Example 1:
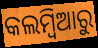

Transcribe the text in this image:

କଲମ୍ବିଆରୁ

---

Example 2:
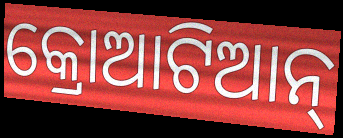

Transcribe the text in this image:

କ୍ରୋଆଟିଆନ୍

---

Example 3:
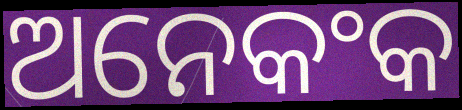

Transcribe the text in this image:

ଅନେକଂକ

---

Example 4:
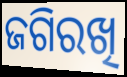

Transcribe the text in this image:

ଜଗିରଖି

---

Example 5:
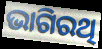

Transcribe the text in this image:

ଭାଗିରଥି